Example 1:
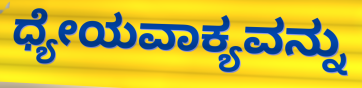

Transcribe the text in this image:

ಧ್ಯೇಯವಾಕ್ಯವನ್ನು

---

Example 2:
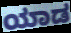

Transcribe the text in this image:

ಯಾಡ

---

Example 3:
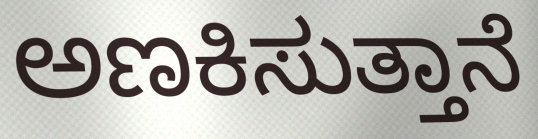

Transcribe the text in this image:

ಅಣಕಿಸುತ್ತಾನೆ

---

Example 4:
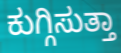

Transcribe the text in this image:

ಕುಗ್ಗಿಸುತ್ತಾ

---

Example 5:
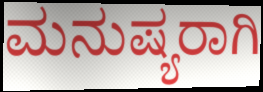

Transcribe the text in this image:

ಮನುಷ್ಯರಾಗಿ